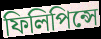
ফিলিপিন্সে